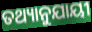
ତଥ୍ୟାନୁଯାୟୀ